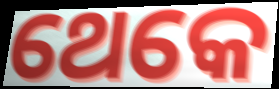
ଥେକେ